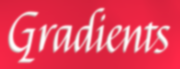
Gradients